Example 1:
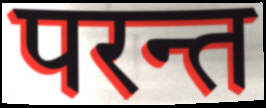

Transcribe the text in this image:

परन्त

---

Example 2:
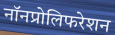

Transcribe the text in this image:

नॉनप्रोलिफरेशन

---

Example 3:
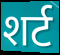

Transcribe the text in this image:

शर्ट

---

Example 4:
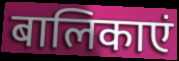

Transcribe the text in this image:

बालिकाएं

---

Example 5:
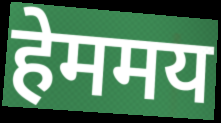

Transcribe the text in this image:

हेममय